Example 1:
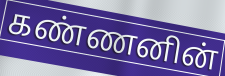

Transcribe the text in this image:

கண்ணனின்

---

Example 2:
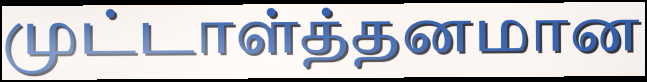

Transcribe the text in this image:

முட்டாள்த்தனமான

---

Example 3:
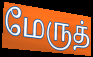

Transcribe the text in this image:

மேருத்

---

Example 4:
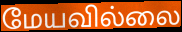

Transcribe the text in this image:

மேயவில்லை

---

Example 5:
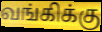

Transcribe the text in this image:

வங்கிக்கு